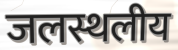
जलस्थलीय